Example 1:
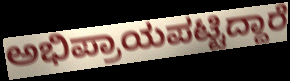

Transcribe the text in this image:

ಅಭಿಪ್ರಾಯಪಟ್ಟಿದ್ದಾರೆ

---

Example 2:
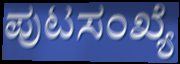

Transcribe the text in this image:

ಪುಟಸಂಖ್ಯೆ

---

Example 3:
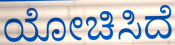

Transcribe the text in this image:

ಯೋಚಿಸಿದೆ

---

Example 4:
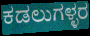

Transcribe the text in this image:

ಕಡಲುಗಳ್ಳರ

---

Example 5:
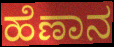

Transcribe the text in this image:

ಹೆಣಾನ